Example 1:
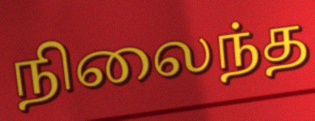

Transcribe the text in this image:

நிலைந்த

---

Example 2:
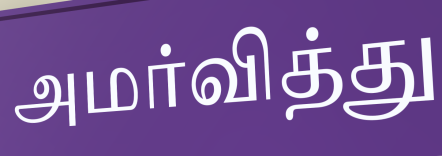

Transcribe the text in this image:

அமர்வித்து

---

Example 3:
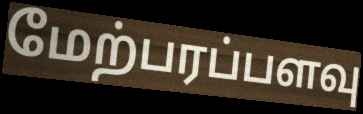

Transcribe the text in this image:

மேற்பரப்பளவு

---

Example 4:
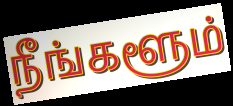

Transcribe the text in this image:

நீங்களூம்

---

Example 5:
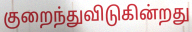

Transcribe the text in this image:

குறைந்துவிடுகின்றது